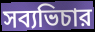
সব্যভিচার